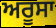
ਅਰੂਸਾ